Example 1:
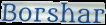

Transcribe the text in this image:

Borshar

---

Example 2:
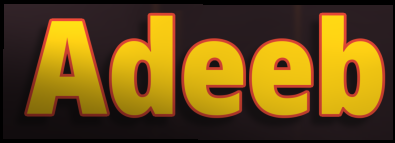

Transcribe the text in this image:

Adeeb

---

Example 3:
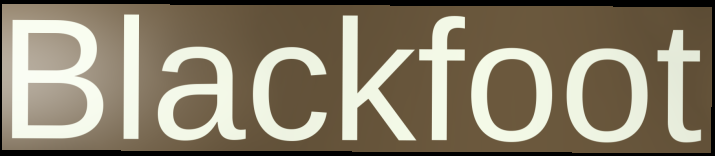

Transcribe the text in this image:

Blackfoot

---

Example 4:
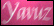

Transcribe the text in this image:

Yavuz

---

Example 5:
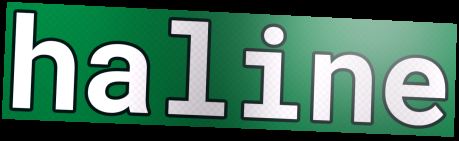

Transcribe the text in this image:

haline